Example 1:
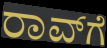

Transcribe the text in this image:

ರಾವ್‌ಗೆ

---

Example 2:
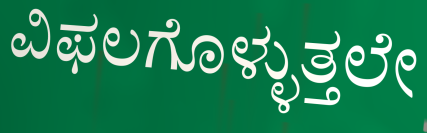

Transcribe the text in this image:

ವಿಫಲಗೊಳ್ಳುತ್ತಲೇ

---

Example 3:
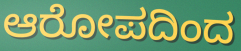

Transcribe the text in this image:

ಆರೋಪದಿಂದ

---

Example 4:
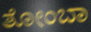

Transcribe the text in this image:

ತೋಂಬಾ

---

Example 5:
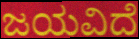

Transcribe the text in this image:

ಜಯವಿದೆ